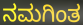
ನಮಗಿಂತ